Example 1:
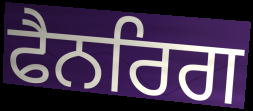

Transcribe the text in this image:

ਫੈਨਰਿਗ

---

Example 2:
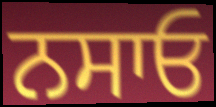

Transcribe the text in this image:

ਨਸਾਓ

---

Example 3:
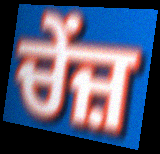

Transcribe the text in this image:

ਚੇਂਜ਼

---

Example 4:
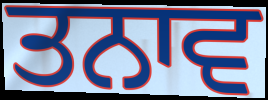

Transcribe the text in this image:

ਤਨਾਵ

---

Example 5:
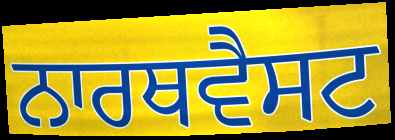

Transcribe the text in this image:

ਨਾਰਥਵੈਸਟ